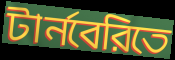
টার্নবেরিতে